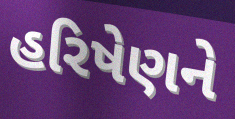
હરિષેણને